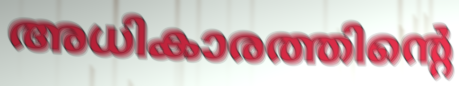
അധികാരത്തിന്റെ